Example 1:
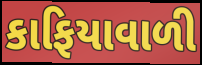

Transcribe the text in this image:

કાફિયાવાળી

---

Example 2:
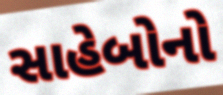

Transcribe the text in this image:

સાહેબોનો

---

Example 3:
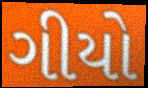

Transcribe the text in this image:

ગીયો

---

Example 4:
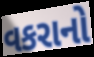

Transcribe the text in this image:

વકરાનો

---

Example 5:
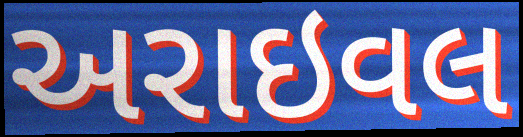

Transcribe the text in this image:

અરાઇવલ